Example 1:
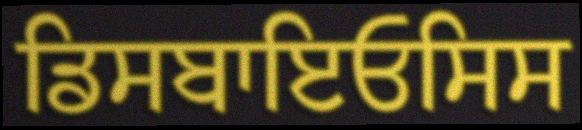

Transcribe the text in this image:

ਡਿਸਬਾਇਓਸਿਸ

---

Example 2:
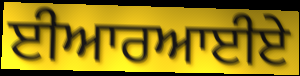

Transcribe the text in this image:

ਈਆਰਆਈਏ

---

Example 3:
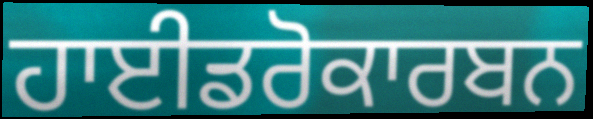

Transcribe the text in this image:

ਹਾਈਡਰੋਕਾਰਬਨ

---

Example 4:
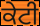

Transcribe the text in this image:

ਕੇਟੀ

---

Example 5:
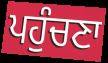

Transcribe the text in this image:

ਪਹੁੰਚਣਾ